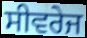
ਸੀਵਰੇਜ